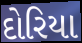
દોરિયા